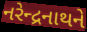
નરેન્દ્રનાથને